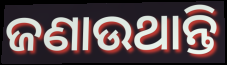
ଜଣାଉଥାନ୍ତି